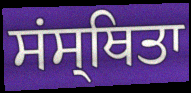
ਸਂਸ੍ਥਿਤਾ